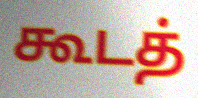
கூடத்